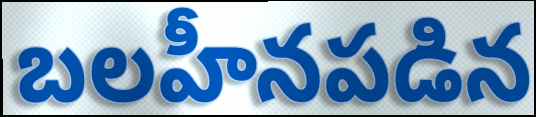
బలహీనపడిన